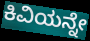
ಕಿವಿಯನ್ನೇ